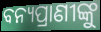
ବନ୍ୟପ୍ରାଣୀଙ୍କୁ